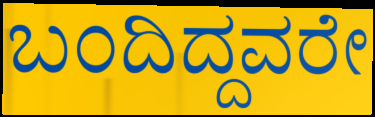
ಬಂದಿದ್ದವರೇ